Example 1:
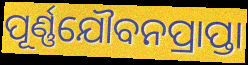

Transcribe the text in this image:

ପୂର୍ଣ୍ଣଯୌବନପ୍ରାପ୍ତା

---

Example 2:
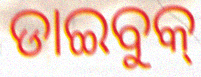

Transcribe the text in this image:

ଡାଇବୁକ୍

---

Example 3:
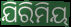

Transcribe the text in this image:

ଯିରିମିୟ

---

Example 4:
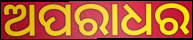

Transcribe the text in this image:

ଅପରାଧର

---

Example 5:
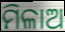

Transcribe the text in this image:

ମିଳାଅ